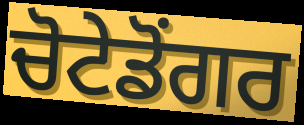
ਚੋਟੇਡੋਂਗਰ